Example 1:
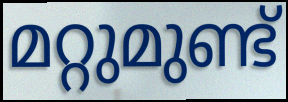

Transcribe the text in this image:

മറ്റുമുണ്ട്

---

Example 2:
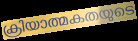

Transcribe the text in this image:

ക്രിയാത്മകതയുടെ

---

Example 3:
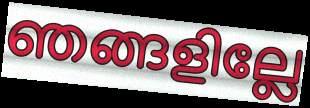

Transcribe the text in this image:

ഞങ്ങളില്ലേ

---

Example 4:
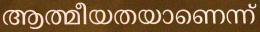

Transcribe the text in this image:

ആത്മീയതയാണെന്ന്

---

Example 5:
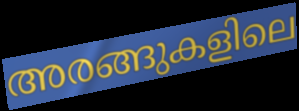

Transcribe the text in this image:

അരങ്ങുകളിലെ